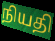
நியதி